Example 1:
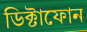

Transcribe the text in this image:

ডিক্টাফোন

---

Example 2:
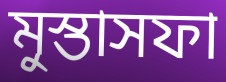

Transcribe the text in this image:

মুস্তাসফা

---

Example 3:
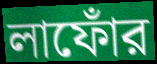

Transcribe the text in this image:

লাফোঁর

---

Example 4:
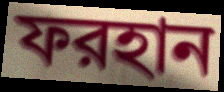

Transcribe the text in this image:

ফরহান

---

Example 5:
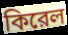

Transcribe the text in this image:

কিরেল